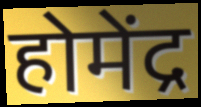
होमेंद्र